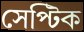
সেপ্টিক